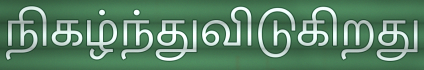
நிகழ்ந்துவிடுகிறது